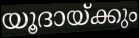
യൂദായ്ക്കും